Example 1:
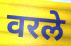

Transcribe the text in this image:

वरले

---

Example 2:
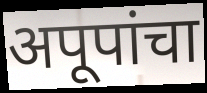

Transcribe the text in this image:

अपूपांचा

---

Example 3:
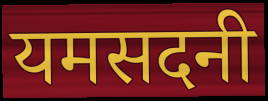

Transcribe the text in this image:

यमसदनी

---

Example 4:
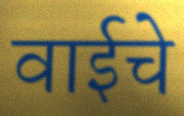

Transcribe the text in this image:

वाईचे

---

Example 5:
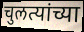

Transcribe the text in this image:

चुलत्यांच्या